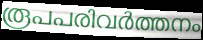
രൂപപരിവർത്തനം